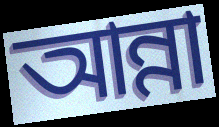
আন্না